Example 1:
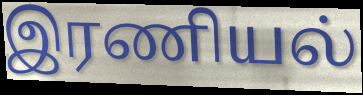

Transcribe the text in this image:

இரணியல்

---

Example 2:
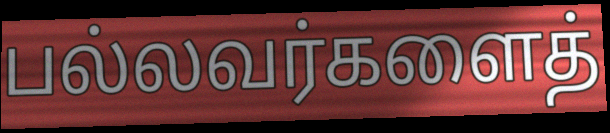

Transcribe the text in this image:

பல்லவர்களைத்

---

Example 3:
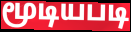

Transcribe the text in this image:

மூடியபடி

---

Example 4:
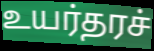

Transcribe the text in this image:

உயர்தரச்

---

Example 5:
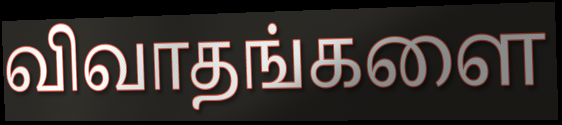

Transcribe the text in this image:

விவாதங்களை